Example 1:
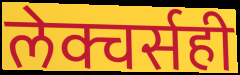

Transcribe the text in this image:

लेक्चर्सही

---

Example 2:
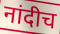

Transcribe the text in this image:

नांदीच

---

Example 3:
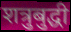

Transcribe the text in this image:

शत्रुबुद्धी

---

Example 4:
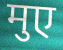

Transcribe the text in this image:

मुए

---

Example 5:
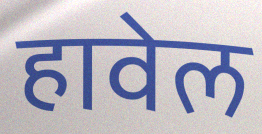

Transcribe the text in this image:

हावेल